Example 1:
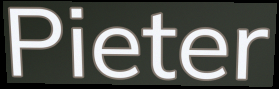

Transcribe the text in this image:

Pieter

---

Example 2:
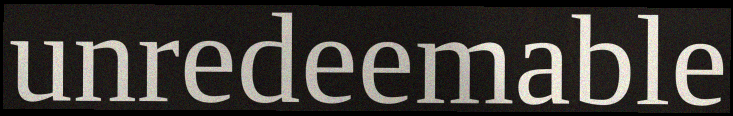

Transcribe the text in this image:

unredeemable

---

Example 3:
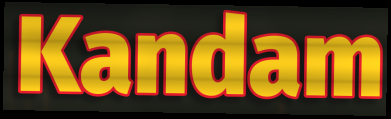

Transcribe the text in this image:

Kandam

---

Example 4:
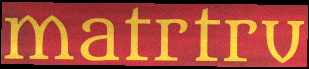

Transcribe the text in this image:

matrtru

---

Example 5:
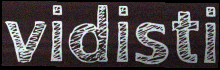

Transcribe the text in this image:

vidisti